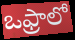
ఒఫ్రాలో